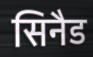
सिनैड